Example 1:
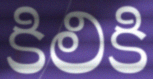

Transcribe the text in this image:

కిలికి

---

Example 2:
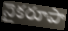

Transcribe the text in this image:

నైకరూపా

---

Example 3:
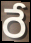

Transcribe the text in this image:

రే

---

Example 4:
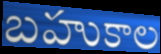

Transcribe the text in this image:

బహుకాల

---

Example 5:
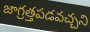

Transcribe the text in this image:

జాగ్రత్తపడవచ్చని